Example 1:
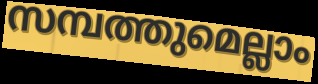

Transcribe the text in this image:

സമ്പത്തുമെല്ലാം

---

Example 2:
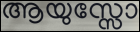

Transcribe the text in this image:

ആയുസ്സോ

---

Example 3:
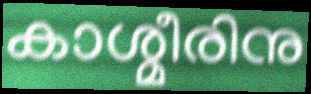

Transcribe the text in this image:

കാശ്മീരിനു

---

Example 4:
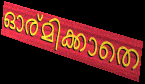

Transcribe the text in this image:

ഓര്മിക്കാതെ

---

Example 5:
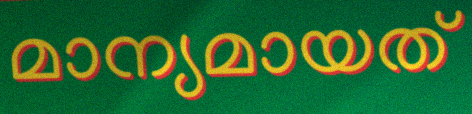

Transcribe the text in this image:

മാന്യമായത്